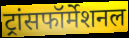
ट्रांसफॉर्मेशनल